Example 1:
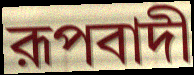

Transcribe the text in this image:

রূপবাদী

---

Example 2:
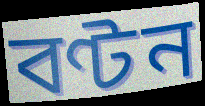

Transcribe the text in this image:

বণ্টন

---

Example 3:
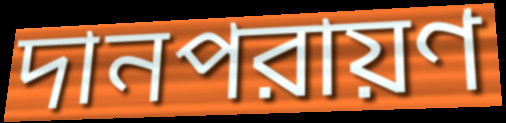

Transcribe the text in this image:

দানপরায়ণ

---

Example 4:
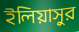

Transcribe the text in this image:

ইলিয়াসুর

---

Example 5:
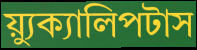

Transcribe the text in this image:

য়্যুক্যালিপটাস